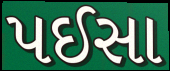
પઈસા